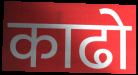
काढो